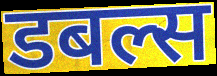
डबल्स